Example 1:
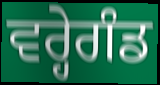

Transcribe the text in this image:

ਵਰ੍ਹੇਗੰਡ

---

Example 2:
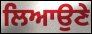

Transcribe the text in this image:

ਲਿਆਉਣੇ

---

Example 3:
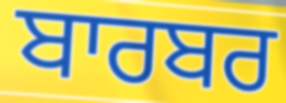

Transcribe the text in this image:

ਬਾਰਬਰ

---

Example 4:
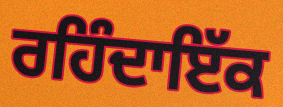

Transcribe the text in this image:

ਰਹਿੰਦਾਇੱਕ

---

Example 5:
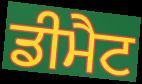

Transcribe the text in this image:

ਡੀਮੈਟ